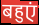
बहुएं